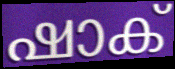
ഷാക്